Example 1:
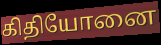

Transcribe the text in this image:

கிதியோனை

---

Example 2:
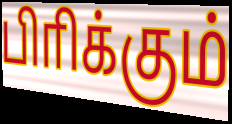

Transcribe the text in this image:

பிரிக்கும்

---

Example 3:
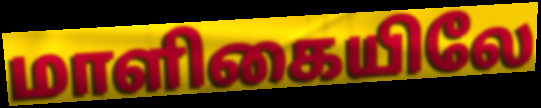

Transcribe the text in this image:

மாளிகையிலே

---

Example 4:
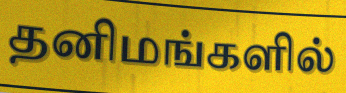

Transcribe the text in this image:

தனிமங்களில்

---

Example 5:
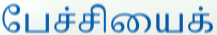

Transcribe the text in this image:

பேச்சியைக்